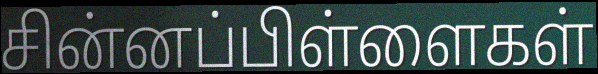
சின்னப்பிள்ளைகள்